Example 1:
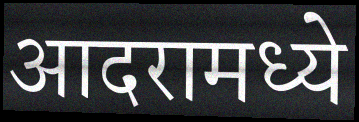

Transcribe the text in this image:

आदरामध्ये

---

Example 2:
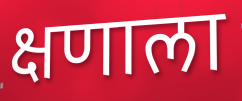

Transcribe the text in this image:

क्षणाला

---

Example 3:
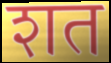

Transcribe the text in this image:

शत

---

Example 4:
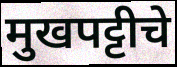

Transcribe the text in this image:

मुखपट्टीचे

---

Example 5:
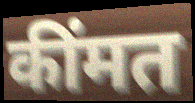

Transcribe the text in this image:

कींमत